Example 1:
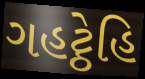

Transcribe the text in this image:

ગહટ્ઠેહિ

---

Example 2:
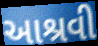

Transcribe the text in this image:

આશ્રવી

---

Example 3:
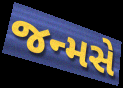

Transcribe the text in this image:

જન્મસે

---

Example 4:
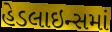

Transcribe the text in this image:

હેડલાઇન્સમાં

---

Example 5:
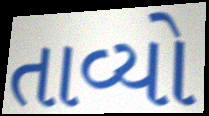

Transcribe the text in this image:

તાવ્યો